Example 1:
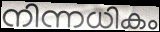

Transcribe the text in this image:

നിന്നധികം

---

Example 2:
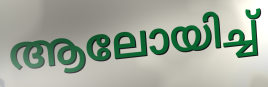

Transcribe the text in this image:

ആലോയിച്ച്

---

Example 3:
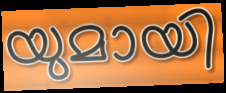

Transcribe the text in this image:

യുമായി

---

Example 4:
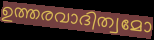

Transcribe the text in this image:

ഉത്തരവാദിത്വമോ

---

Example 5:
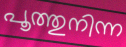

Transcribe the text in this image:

പൂത്തുനിന്ന